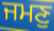
ਜਮਣੁ